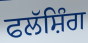
ਫਲੱਸ਼ਿੰਗ